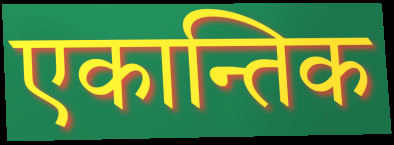
एकान्तिक